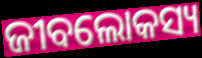
ଜୀବଲୋକସ୍ୟ